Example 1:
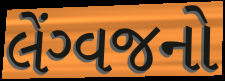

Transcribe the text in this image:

લેંગ્વજનો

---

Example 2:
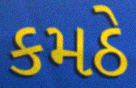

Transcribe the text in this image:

કમઠે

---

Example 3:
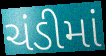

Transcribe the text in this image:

ચંડીમાં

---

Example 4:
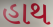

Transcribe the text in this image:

હાથ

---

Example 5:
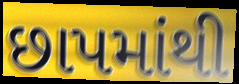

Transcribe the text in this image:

છાપમાંથી